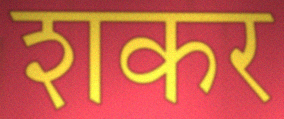
शकर